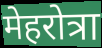
मेहरोत्रा